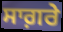
ਸਾਗ਼ਰੇ